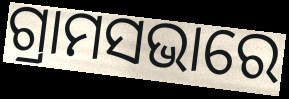
ଗ୍ରାମସଭାରେ